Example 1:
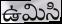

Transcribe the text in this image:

ఉమిసి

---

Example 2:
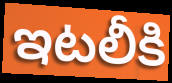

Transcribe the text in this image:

ఇటలీకి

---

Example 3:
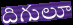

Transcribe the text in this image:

దిగులూ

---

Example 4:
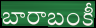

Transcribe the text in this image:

బారాబంకీ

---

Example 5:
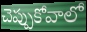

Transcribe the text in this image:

చెప్పుకోవాలో